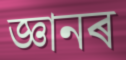
জ্ঞানৰ